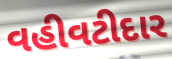
વહીવટીદાર